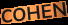
COHEN